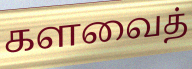
களவைத்